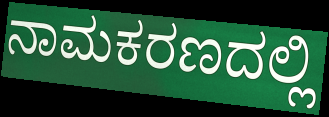
ನಾಮಕರಣದಲ್ಲಿ